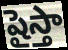
షైస్తా